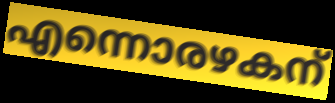
എന്നൊരഴകന്